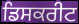
ਡਿਸਕਰੀਟ